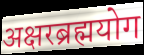
अक्षरब्रह्मयोग